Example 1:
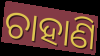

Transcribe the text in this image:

ଚାହାଣି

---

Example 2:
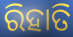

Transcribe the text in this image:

ରିହାତି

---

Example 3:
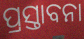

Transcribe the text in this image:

ପ୍ରସ୍ତାବନା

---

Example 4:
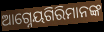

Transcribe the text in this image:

ଆଗ୍ନେୟଗିରିମାନଙ୍କ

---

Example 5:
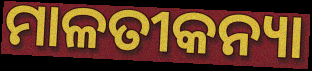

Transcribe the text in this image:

ମାଳତୀକନ୍ୟା